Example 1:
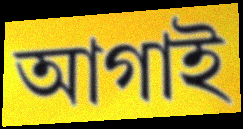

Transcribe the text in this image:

আগাই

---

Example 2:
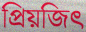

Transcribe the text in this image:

প্রিয়জিৎ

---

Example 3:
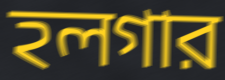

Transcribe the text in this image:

হলগার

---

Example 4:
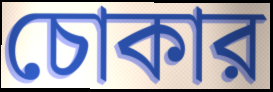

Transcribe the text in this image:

চোকার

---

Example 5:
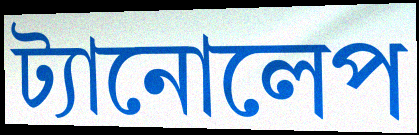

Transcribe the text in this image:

ট্যানোলেপ